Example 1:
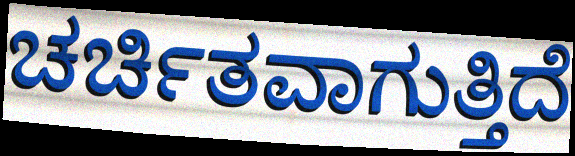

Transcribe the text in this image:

ಚರ್ಚಿತವಾಗುತ್ತಿದೆ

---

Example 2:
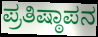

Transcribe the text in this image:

ಪ್ರತಿಷ್ಠಾಪನ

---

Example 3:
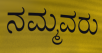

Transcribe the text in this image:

ನಮ್ಮವರು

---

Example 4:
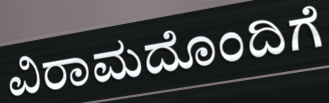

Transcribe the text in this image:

ವಿರಾಮದೊಂದಿಗೆ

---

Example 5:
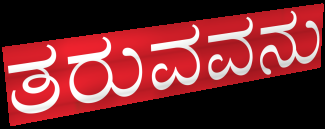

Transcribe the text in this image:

ತರುವವನು